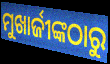
ମୁଖାର୍ଜୀଙ୍କଠାରୁ